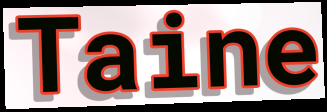
Taine